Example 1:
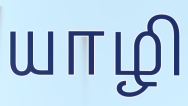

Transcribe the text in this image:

யாழி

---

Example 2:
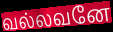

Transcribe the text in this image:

வல்லவனே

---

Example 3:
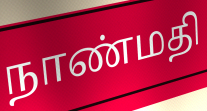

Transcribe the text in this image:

நாண்மதி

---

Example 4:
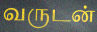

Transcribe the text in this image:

வருடன்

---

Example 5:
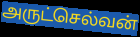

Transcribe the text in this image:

அருட்செல்வன்